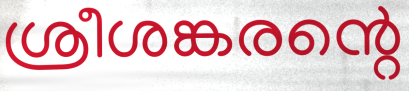
ശ്രീശങ്കരന്റെ